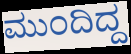
ಮುಂದಿದ್ದ